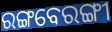
ରଙ୍ଗବେରଙ୍ଗୀ